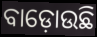
ବାଡ଼ୋଉଛି